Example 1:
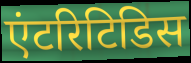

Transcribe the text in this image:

एंटरिटिडिस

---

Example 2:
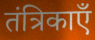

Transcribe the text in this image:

तंत्रिकाएँ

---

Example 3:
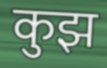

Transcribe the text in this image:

कुझ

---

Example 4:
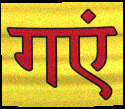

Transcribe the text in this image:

गएं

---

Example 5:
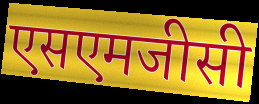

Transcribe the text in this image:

एसएमजीसी